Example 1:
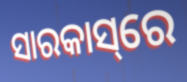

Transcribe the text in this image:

ସାରକାସ୍‌ରେ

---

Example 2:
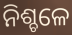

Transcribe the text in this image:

ନିଶ୍ଚଳେ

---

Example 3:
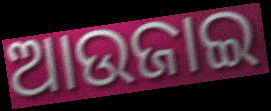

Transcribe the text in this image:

ଆଉଜାଇ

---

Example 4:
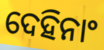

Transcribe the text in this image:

ଦେହିନାଂ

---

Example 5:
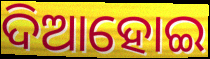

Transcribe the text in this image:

ଦିଆହୋଇ